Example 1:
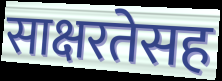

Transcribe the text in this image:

साक्षरतेसह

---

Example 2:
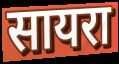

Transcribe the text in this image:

सायरा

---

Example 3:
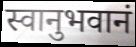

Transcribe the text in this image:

स्वानुभवानं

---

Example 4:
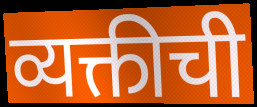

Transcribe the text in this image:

व्यक्तीची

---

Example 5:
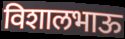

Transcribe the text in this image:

विशालभाऊ